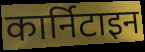
कार्निटाइन